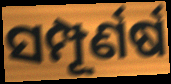
ସମ୍ପୂର୍ଣର୍ଷ